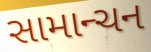
સામાન્ચન